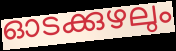
ഓടക്കുഴലും